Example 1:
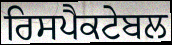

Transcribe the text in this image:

ਰਿਸਪੈਕਟੇਬਲ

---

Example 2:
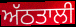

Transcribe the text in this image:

ਅੱਠਤਾਲੀ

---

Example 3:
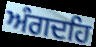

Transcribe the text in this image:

ਅੰਗਦਹਿ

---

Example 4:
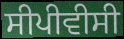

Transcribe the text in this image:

ਸੀਪੀਵੀਸੀ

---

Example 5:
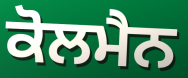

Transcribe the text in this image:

ਕੋਲਮੈਨ